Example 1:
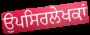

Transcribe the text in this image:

ਉਪਸਿਰਲੇਖਕਾਂ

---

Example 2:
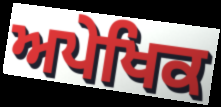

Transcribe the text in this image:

ਅਪੇਖਿਕ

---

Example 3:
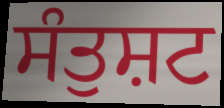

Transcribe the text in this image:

ਸੰਤੁਸ਼ਟ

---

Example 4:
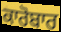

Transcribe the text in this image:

ਕਾਰੋਬਾਰ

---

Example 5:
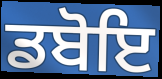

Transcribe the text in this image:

ਡਬੋਇ